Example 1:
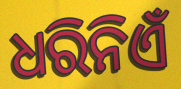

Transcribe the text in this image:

ଧରିନିଏଁ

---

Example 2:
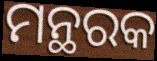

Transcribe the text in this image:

ମନ୍ଥରକ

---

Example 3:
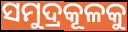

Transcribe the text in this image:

ସମୁଦ୍ରକୂଳକୁ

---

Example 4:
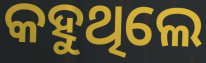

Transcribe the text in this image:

କହୁଥିଲେ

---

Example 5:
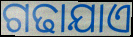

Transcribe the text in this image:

ଗଢାଯାଏ